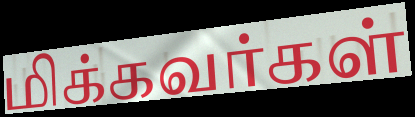
மிக்கவர்கள்